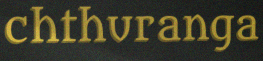
chthuranga